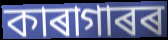
কাৰাগাৰৰ